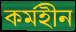
কৰ্মহীন